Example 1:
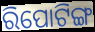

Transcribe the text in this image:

ରିପୋଟିଙ୍ଗ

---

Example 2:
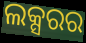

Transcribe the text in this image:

ଲକ୍ସରର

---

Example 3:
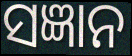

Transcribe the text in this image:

ସଜ୍ଞାନ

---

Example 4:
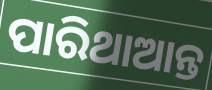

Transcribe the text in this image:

ପାରିଥାଆନ୍ତ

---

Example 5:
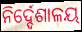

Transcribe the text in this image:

ନିର୍ଦ୍ଦେଶାଳୟ